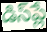
డిస్‌ప్లే